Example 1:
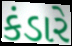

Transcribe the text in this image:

કંડારે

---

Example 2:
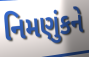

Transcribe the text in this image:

નિમણુંકને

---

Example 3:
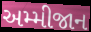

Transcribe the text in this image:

અમ્મીજાન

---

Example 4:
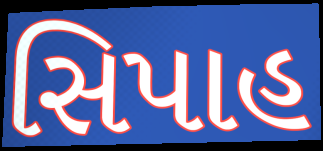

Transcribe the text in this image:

સિપાહ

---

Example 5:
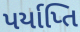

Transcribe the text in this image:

પર્યાપ્તિ